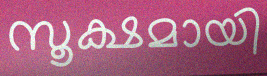
സൂക്ഷമായി